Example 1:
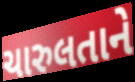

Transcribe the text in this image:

ચારુલતાને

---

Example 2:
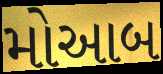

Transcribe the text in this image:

મોઆબ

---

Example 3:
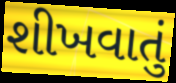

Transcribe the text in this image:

શીખવાતું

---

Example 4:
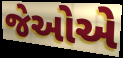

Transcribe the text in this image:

જેઓએ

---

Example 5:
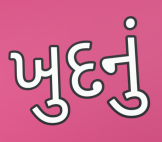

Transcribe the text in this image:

ખુદનું